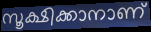
സൂക്ഷിക്കാനാണ്